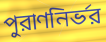
পুরাণনির্ভর